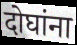
दोघांना